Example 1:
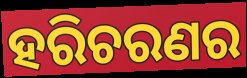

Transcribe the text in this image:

ହରିଚରଣର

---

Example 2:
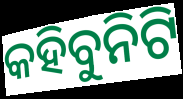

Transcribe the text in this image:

କହିବୁନିଟି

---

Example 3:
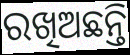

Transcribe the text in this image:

ରଖିଅଛନ୍ତି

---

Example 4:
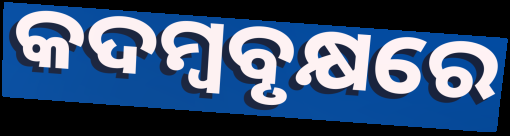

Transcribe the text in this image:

କଦମ୍ୱବୃକ୍ଷରେ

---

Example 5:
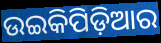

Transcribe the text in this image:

ଉଇକିପିଡ଼ିଆର